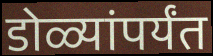
डोळ्यांपर्यंत